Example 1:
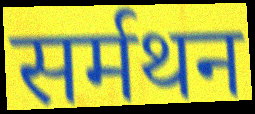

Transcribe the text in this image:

सर्मथन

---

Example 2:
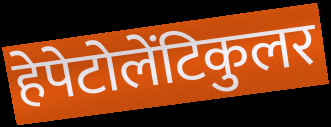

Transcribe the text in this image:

हेपेटोलेंटिकुलर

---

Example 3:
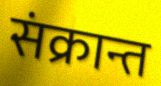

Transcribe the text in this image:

संक्रान्त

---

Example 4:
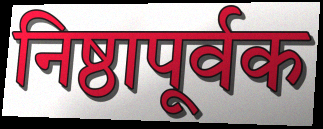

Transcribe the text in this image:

निष्ठापूर्वक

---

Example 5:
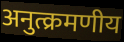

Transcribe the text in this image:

अनुत्क्रमणीय